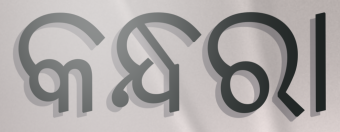
କନ୍ଧରା